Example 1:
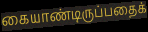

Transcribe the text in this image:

கையாண்டிருப்பதைக்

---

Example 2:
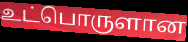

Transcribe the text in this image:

உட்பொருளான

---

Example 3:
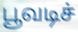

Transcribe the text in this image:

பூவடிச்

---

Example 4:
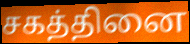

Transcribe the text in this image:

சகத்தினை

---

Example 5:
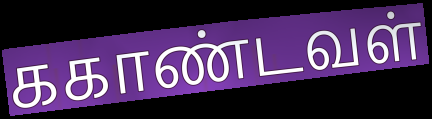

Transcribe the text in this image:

ககாண்டவள்